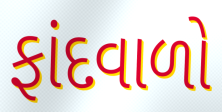
ફાંદવાળો